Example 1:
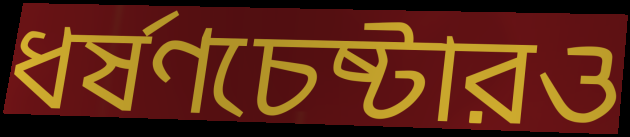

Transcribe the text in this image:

ধর্ষণচেষ্টারও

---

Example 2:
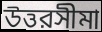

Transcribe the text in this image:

উত্তরসীমা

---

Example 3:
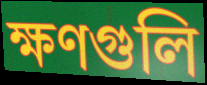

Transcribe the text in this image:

ক্ষণগুলি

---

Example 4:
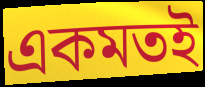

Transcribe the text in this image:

একমতই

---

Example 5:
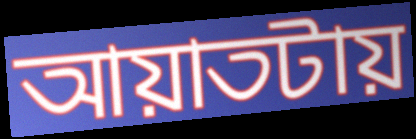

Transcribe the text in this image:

আয়াতটায়